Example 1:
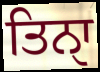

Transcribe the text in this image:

ਤਿਨੑਾ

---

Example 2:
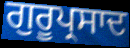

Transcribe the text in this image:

ਗੁਰੂਪ੍ਰਸਾਦ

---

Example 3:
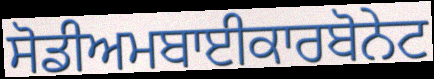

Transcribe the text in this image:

ਸੋਡੀਅਮਬਾਈਕਾਰਬੋਨੇਟ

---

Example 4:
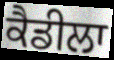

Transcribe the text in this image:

ਕੈਡੀਲਾ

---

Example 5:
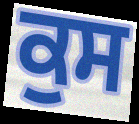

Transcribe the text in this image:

ਕੁਸ